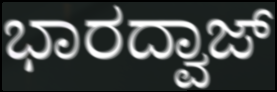
ಭಾರದ್ವಾಜ್